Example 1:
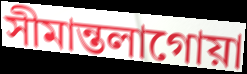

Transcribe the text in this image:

সীমান্তলাগোয়া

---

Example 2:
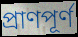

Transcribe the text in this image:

প্রাণপূর্ণ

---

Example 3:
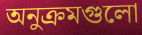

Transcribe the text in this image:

অনুক্রমগুলো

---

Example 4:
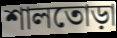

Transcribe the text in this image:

শালতোড়া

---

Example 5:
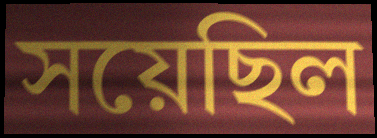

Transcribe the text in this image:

সয়েছিল